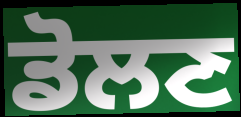
ਡੋਲਣ